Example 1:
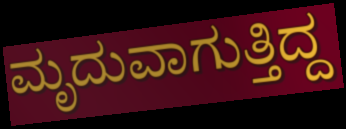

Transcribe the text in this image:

ಮೃದುವಾಗುತ್ತಿದ್ದ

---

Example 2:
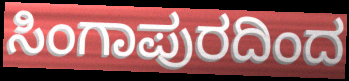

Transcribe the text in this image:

ಸಿಂಗಾಪುರದಿಂದ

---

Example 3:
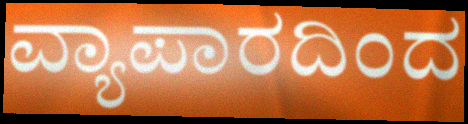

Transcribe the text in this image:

ವ್ಯಾಪಾರದಿಂದ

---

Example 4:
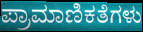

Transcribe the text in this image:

ಪ್ರಾಮಾಣಿಕತೆಗಳು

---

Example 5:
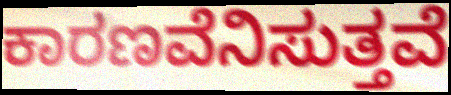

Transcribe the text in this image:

ಕಾರಣವೆನಿಸುತ್ತವೆ